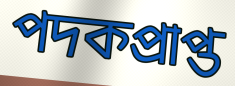
পদকপ্রাপ্ত